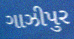
ગાઝીપુર